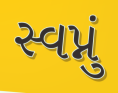
સ્વપ્નું